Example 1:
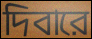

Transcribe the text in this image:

দিবারে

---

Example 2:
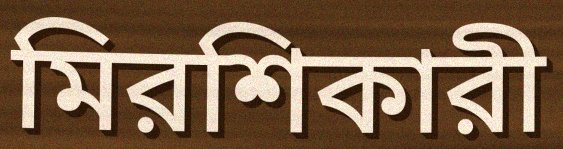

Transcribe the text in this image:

মিরশিকারী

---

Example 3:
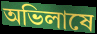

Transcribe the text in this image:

অভিলাষে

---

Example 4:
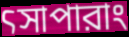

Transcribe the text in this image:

ৎসাপারাং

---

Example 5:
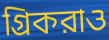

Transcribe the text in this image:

গ্রিকরাও